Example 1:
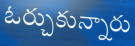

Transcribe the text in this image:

ఓర్చుకున్నారు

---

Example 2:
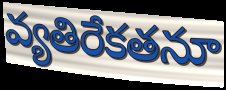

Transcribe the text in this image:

వ్యతిరేకతనూ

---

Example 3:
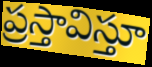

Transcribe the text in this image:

ప్రస్తావిస్తూ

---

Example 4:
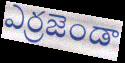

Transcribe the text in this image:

ఎర్రజెండా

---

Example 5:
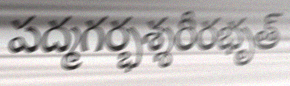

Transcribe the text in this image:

పద్మగర్భశ్శరీరభృత్